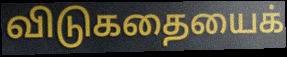
விடுகதையைக்